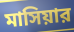
মাসিয়ার